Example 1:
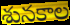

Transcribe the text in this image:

శునకాల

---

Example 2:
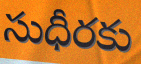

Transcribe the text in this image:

సుధీరకు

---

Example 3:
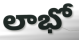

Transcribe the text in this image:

లాభో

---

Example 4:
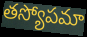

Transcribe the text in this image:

తస్యోపమా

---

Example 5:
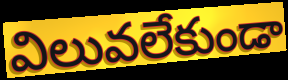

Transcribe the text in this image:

విలువలేకుండా